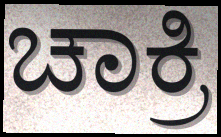
ಚಾಕ್ರಿ